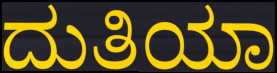
ದುತಿಯಾ